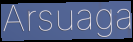
Arsuaga